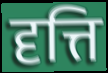
दृत्ति